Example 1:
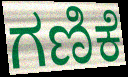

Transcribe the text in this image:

ಗಣಿಕೆ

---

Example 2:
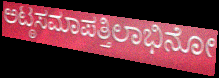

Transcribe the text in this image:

ಅಟ್ಠಸಮಾಪತ್ತಿಲಾಭಿನೋ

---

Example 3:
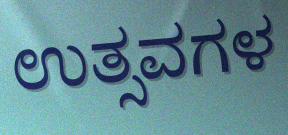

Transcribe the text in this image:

ಉತ್ಸವಗಳ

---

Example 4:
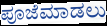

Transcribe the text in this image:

ಪೂಜೆಮಾಡಲು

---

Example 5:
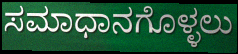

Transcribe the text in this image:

ಸಮಾಧಾನಗೊಳ್ಳಲು